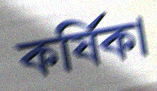
কর্ষিকা